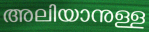
അലിയാനുള്ള